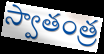
స్వాతంత్ర